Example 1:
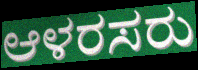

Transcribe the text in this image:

ಆಳರಸರು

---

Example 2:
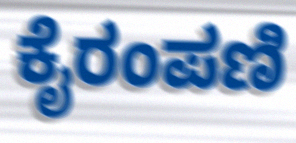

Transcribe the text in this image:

ಕೈರಂಪಣಿ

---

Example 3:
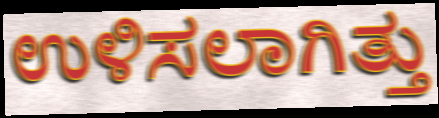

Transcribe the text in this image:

ಉಳಿಸಲಾಗಿತ್ತು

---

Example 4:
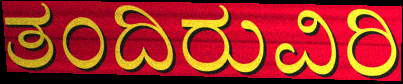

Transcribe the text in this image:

ತಂದಿರುವಿರಿ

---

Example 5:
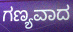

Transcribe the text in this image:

ಗಣ್ಯವಾದ